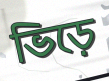
ভিড়ে